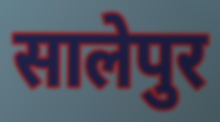
सालेपुर